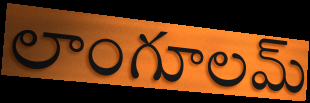
లాంగూలమ్